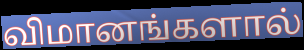
விமானங்களால்